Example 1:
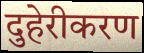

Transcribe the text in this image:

दुहेरीकरण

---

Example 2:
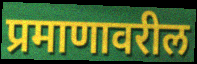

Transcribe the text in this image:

प्रमाणावरील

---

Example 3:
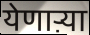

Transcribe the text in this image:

येणाऱ्‍या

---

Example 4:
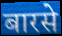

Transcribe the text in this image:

बारसे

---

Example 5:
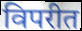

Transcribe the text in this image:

विपरीत